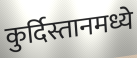
कुर्दिस्तानमध्ये